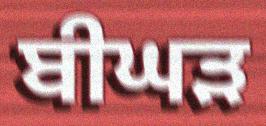
ਬੀਘੜ